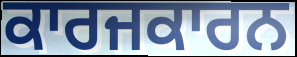
ਕਾਰਜਕਾਰਨ